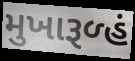
મુખારૂળ્હં